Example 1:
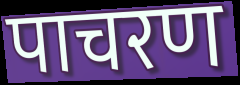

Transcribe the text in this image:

पाचरण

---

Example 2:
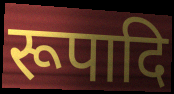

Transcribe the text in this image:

रूपादि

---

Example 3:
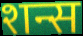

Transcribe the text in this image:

शन्स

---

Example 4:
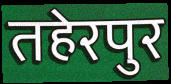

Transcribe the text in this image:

तहेरपुर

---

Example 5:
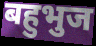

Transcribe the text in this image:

बहुभुज